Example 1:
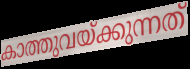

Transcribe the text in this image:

കാത്തുവയ്ക്കുന്നത്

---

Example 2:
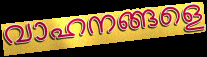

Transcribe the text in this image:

വാഹനങ്ങളെ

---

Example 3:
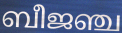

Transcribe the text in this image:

ബീജഞ്ച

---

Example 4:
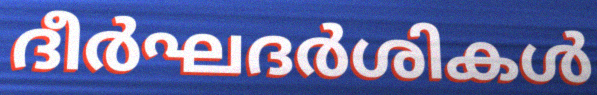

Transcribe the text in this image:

ദീർഘദർശികൾ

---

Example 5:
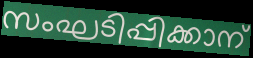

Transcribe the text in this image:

സംഘടിപ്പിക്കാന്